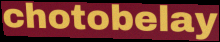
chotobelay